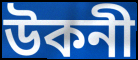
উকনী